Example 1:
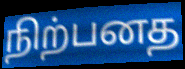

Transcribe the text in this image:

நிற்பனத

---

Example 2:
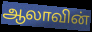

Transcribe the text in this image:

ஆலாவின்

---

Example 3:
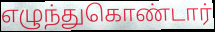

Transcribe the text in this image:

எழுந்துகொண்டார்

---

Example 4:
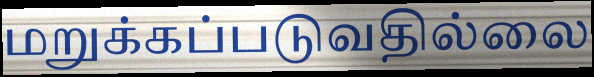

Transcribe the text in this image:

மறுக்கப்படுவதில்லை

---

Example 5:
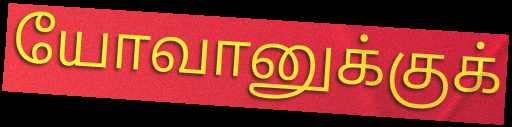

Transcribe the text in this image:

யோவானுக்குக்